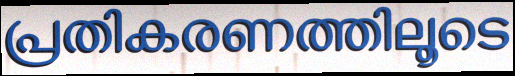
പ്രതികരണത്തിലൂടെ